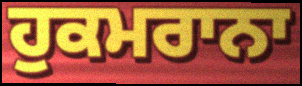
ਹੁਕਮਰਾਨਾ